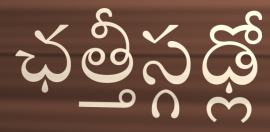
ఛత్తీస్గఢ్లో